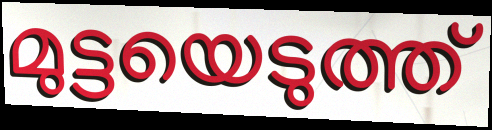
മുട്ടയെടുത്ത്